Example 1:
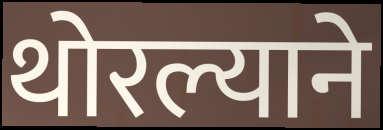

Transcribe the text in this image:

थोरल्याने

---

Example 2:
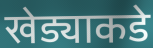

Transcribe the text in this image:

खेड्याकडे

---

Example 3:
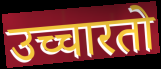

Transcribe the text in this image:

उच्चारतो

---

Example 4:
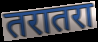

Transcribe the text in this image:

तरातरा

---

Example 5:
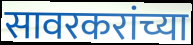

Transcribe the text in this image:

सावरकरांच्या